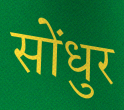
सोंधुर